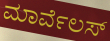
ಮಾರ್ವೆಲಸ್